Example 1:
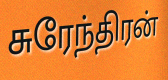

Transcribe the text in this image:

சுரேந்திரன்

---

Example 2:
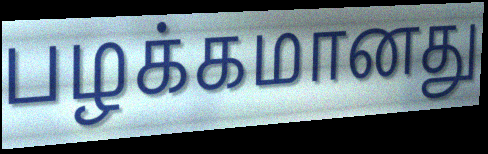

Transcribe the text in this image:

பழக்கமானது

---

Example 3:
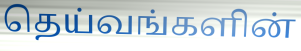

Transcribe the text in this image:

தெய்வங்களின்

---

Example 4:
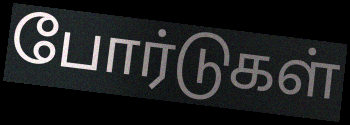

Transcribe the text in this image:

போர்டுகள்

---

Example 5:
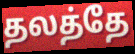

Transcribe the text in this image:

தலத்தே